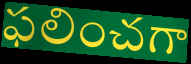
ఫలించగా